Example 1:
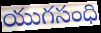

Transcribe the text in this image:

యుగసంధి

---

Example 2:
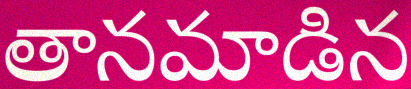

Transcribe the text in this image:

తానమాడిన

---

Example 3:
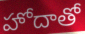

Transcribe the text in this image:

హోదాతో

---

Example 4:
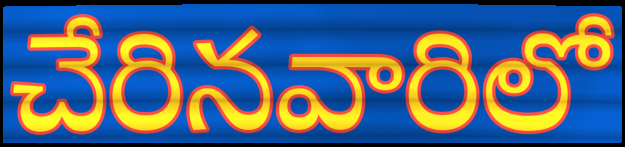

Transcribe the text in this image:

చేరినవారిలో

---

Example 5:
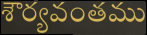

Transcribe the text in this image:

శౌర్యవంతము